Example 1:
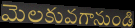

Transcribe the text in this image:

మెలకువగానుండి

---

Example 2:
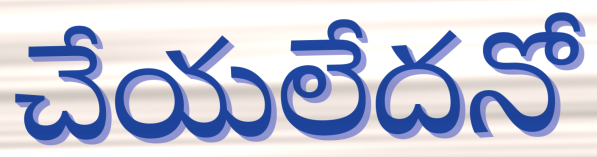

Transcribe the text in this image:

చేయలేదనో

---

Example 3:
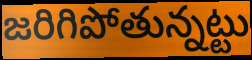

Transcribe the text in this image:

జరిగిపోతున్నట్టు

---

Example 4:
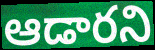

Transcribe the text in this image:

ఆడారని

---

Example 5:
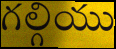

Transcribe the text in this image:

గల్గియు